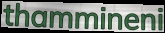
thammineni